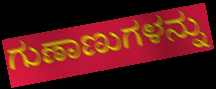
ಗುಣಾಣುಗಳನ್ನು